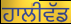
ਹਾਲੀਵੱਡ